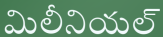
మిలీనియల్